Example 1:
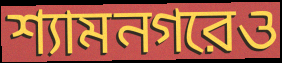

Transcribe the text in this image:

শ্যামনগরেও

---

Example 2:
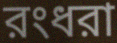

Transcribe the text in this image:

রংধরা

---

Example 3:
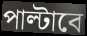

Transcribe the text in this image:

পাল্টাবে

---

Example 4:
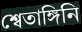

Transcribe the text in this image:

শ্বেতাঙ্গিনি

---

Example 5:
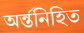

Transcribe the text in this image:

অর্ন্তনিহিত